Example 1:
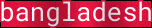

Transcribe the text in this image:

bangladesh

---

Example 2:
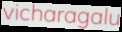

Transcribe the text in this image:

vicharagalu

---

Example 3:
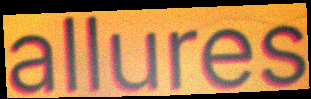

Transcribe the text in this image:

allures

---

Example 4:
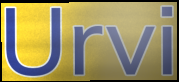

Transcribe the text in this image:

Urvi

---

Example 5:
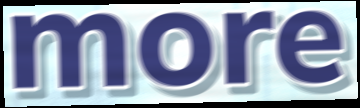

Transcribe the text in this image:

more